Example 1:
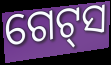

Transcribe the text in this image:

ଗେଟ୍‌ସ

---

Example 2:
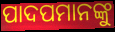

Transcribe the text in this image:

ପାଦପମାନଙ୍କୁ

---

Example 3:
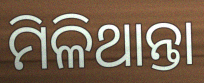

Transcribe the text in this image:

ମିଳିଥାନ୍ତା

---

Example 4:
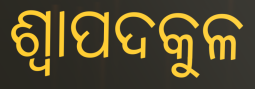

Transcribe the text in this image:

ଶ୍ୱାପଦକୁଳ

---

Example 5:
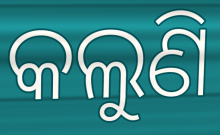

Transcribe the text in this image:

କଲୁଣି